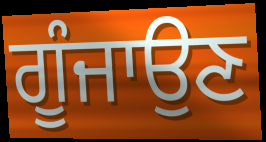
ਗੂੰਜਾਉਣ